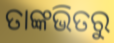
ତାଙ୍କଭିତରୁ